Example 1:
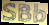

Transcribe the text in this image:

SBb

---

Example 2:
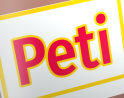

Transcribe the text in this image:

Peti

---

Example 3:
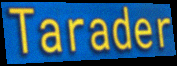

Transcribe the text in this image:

Tarader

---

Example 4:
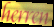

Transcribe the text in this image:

herren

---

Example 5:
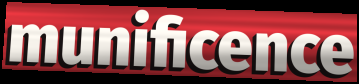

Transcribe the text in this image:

munificence